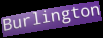
Burlington